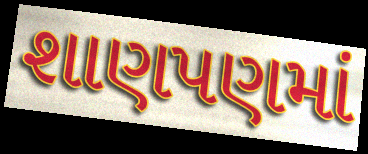
શાણપણમાં